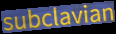
subclavian